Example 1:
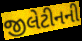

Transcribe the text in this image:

જીલેટીનની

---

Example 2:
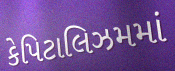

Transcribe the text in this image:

કેપિટાલિઝમમાં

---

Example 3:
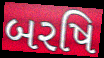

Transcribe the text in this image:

બરષિ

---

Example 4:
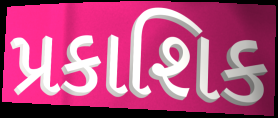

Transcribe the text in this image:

પ્રકાશિક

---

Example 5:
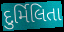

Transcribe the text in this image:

દુર્મિલિતા